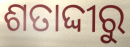
ଶତାଦ୍ଦୀରୁ